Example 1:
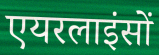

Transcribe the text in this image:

एयरलाइंसों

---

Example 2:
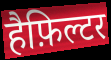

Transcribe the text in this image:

हैफ़िल्टर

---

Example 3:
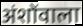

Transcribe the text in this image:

अंशोंवाला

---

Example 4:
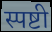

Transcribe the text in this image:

स्पष्टी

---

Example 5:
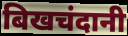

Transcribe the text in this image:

बिखचंदानी